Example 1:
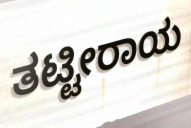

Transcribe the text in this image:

ತಟ್ಟೀರಾಯ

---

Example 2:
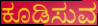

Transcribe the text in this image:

ಕೂಡಿಸುವ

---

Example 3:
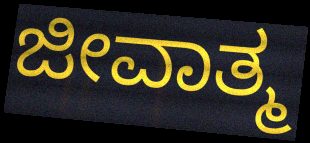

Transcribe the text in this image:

ಜೀವಾತ್ಮ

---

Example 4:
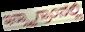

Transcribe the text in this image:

ಇನ್ಸ್ಟಾಗ್ರಾಂನಲ್ಲಿ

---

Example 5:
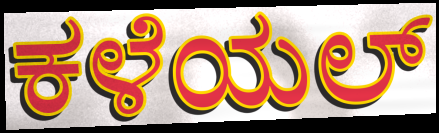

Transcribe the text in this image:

ಕಳೆಯಲ್